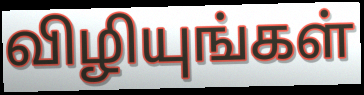
விழியுங்கள்